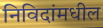
निविदांमधील